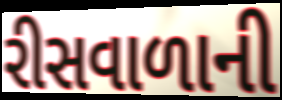
રીસવાળાની